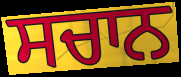
ਸਚਾਨ